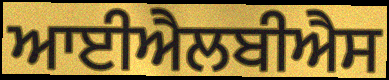
ਆਈਐਲਬੀਐਸ